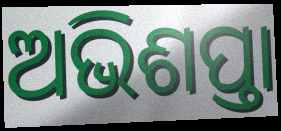
ଅଭିଶପ୍ତା